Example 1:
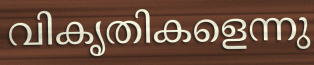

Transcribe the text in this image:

വികൃതികളെന്നു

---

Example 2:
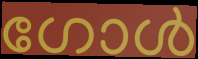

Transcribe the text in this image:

ഗോൾ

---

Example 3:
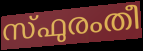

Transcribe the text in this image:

സ്ഫുരംതീ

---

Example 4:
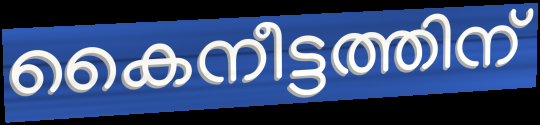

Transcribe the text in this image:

കൈനീട്ടത്തിന്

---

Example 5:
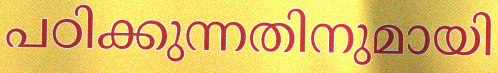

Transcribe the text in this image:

പഠിക്കുന്നതിനുമായി